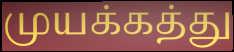
முயக்கத்து